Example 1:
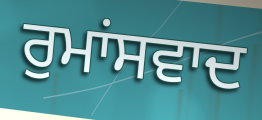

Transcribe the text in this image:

ਰੁਮਾਂਸਵਾਦ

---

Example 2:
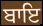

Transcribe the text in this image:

ਬਾਇ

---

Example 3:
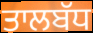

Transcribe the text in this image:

ਤਾਲਬੱਧ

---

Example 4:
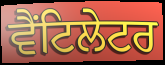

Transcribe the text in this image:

ਵੈਂਟਿਲੇਟਰ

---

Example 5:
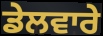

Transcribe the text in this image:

ਡੇਲਵਾਰੇ